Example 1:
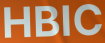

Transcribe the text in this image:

HBIC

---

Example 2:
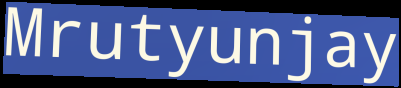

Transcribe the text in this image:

Mrutyunjay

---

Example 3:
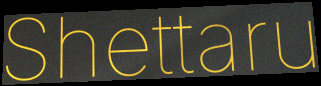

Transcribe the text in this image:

Shettaru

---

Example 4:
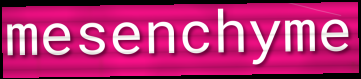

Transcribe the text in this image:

mesenchyme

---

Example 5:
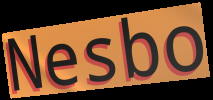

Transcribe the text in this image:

Nesbo